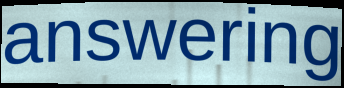
answering